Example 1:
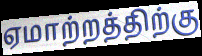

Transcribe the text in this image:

ஏமாற்றத்திற்கு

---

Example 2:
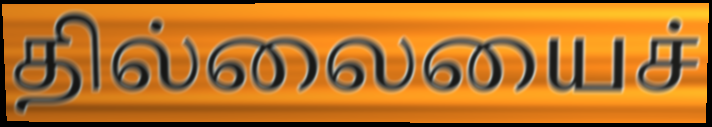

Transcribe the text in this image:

தில்லையைச்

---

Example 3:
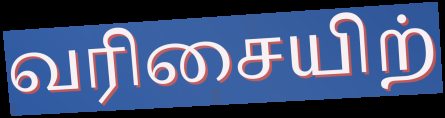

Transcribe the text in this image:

வரிசையிற்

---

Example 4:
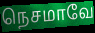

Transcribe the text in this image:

நெசமாவே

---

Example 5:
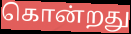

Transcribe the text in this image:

கொன்றது